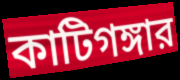
কাটিগঙ্গার